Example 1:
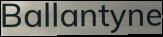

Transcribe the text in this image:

Ballantyne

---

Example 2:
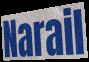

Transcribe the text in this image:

Narail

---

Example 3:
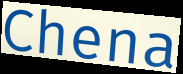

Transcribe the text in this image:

Chena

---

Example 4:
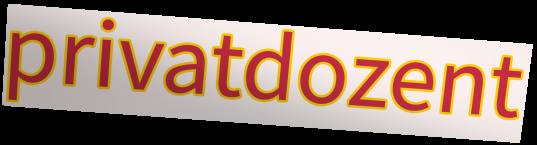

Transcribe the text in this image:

privatdozent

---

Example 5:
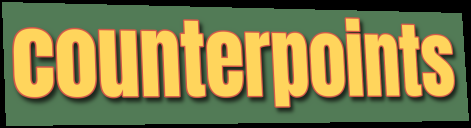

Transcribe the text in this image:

counterpoints